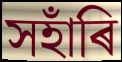
সহাঁৰি